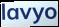
lavyo